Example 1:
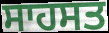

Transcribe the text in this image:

ਸਾਹਸਤ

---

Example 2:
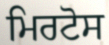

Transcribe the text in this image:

ਮਿਰਟੋਸ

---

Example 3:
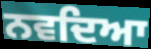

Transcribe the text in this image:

ਨਵਦਿਆ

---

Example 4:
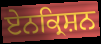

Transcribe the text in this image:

ਏਨਕ੍ਰਿਸ਼ਨ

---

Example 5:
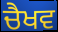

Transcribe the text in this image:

ਚੈਖਵ